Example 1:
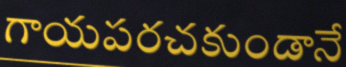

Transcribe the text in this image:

గాయపరచకుండానే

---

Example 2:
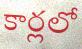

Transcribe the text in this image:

కార్లలో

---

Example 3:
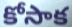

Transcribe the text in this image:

కోసాక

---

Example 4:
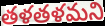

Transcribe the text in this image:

తళతళమని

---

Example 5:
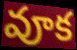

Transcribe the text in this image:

వూక